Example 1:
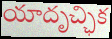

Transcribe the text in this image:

యాదృచ్ఛిక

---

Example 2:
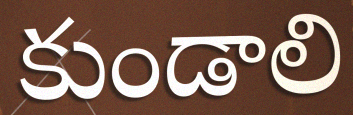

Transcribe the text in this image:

కుండాలి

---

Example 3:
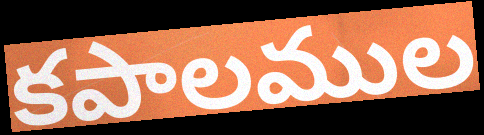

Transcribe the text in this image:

కపాలముల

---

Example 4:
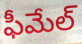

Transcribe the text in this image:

ఫీమేల్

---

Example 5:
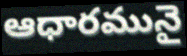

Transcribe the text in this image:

ఆధారమునై